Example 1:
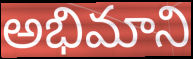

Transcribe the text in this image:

అభిమాని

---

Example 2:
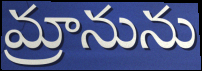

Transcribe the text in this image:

మ్రానును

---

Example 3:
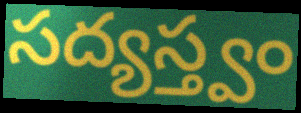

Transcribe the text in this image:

సద్యస్త్వం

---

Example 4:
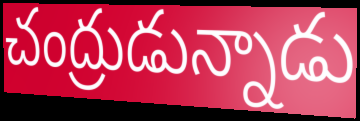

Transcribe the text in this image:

చంద్రుడున్నాడు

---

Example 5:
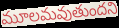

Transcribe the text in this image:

మూలమవుతుందని